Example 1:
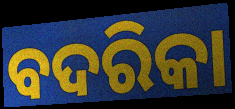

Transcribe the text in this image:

ବଦରିକା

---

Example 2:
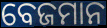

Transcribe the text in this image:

ବେଜମାନ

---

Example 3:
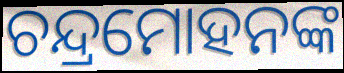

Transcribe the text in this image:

ଚନ୍ଦ୍ରମୋହନଙ୍କ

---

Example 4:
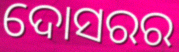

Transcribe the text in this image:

ଦୋସରର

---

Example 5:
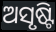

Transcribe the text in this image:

ଅସୃଷ୍ଟି